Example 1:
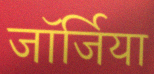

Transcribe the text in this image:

जॉर्जिया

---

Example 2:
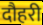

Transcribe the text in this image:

दौहरी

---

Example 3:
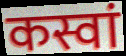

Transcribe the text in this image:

कस्‍वां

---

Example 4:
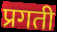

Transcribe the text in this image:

प्रगती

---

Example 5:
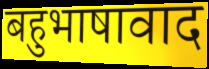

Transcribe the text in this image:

बहुभाषावाद